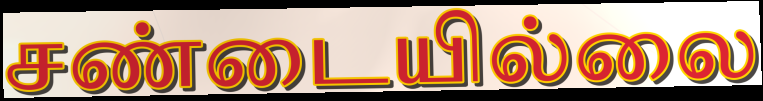
சண்டையில்லை